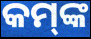
କମ୍‌ଙ୍କ